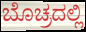
ಬೊಚ್ರದಲ್ಲಿ